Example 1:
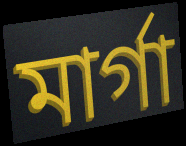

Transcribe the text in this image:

মাৰ্গা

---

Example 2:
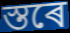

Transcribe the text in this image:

স্তৰে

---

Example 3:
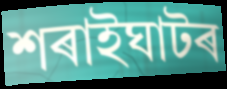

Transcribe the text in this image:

শৰাইঘাটৰ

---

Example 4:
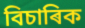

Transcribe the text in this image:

বিচাৰিক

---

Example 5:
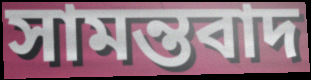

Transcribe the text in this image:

সামন্তবাদ